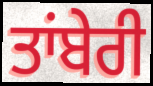
ਤਾਂਬੇਰੀ